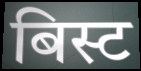
बिस्ट